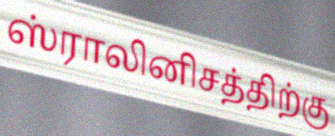
ஸ்ராலினிசத்திற்கு